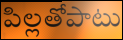
పిల్లతోపాటు